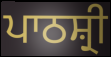
ਪਾਠਸ਼੍ਰੀ